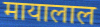
मायालाल